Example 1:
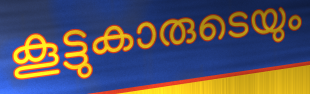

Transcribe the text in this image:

കൂട്ടുകാരുടെയും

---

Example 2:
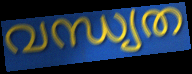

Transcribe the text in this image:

വന്ധ്യത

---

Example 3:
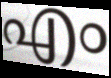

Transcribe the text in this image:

എം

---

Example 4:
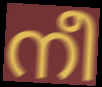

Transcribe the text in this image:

നീ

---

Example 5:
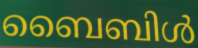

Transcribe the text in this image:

ബൈബിൾ